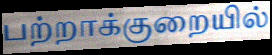
பற்றாக்குறையில்